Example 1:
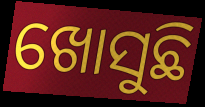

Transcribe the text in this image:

ଖୋସୁଛି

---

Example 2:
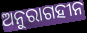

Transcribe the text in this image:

ଅନୁରାଗହୀନ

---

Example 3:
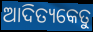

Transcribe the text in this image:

ଆଦିତ୍ୟକେତୁ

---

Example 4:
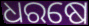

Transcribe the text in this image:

ଧରଷେ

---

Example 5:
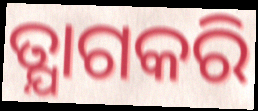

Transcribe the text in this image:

ତ୍ଯାଗକରି